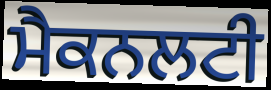
ਮੈਕਨਲਟੀ